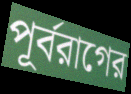
পূর্বরাগের